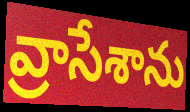
వ్రాసేశాను